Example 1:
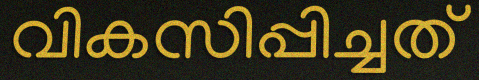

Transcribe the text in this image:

വികസിപ്പിച്ചത്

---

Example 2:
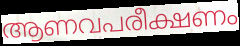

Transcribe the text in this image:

ആണവപരീക്ഷണം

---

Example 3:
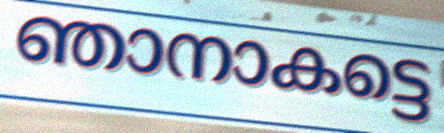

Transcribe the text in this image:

ഞാനാകട്ടെ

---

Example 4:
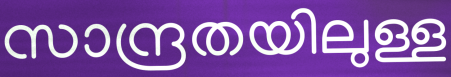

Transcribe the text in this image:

സാന്ദ്രതയിലുള്ള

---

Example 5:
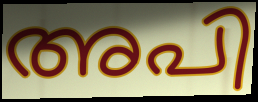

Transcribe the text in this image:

അപി